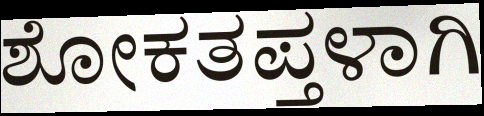
ಶೋಕತಪ್ತಳಾಗಿ